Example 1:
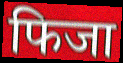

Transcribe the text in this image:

फिजा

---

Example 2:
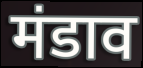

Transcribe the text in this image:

मंडाव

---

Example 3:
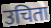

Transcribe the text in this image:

उचिता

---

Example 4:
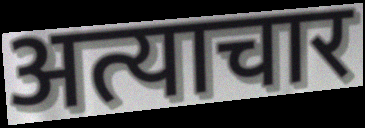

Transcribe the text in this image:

अत्याचार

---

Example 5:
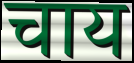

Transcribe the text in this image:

चाय